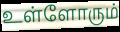
உள்ளோரும்